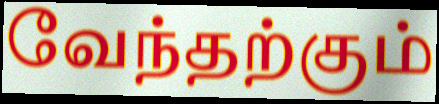
வேந்தற்கும்